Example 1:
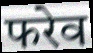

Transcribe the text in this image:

फरेव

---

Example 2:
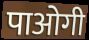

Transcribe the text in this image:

पाओगी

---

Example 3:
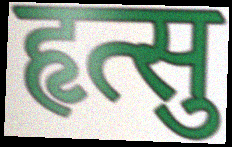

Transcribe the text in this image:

हृत्सु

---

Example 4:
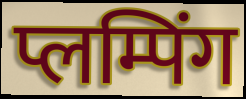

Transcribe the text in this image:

प्लम्पिंग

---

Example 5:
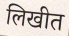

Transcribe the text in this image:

लिखीत